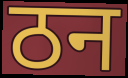
ठन